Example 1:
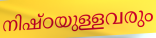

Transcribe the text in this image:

നിഷ്ഠയുള്ളവരും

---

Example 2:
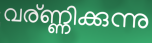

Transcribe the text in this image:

വര്ണ്ണിക്കുന്നു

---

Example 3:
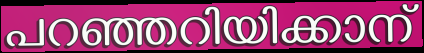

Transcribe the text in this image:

പറഞ്ഞറിയിക്കാന്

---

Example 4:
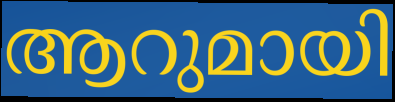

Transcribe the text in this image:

ആറുമായി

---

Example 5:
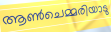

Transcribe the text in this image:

ആൺചെമ്മരിയാടു